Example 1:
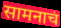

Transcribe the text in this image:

सामनाचं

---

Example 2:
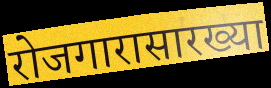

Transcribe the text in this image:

रोजगारासारख्या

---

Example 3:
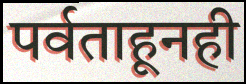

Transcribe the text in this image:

पर्वताहूनही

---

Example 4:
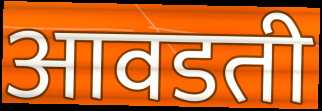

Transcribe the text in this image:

आवडती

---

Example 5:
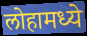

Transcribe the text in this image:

लोहामध्ये